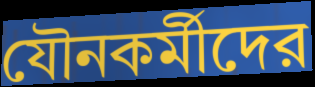
যৌনকর্মীদের